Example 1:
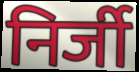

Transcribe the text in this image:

निर्जी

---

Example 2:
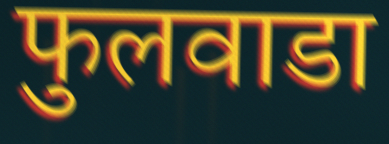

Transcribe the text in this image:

फुलवाडा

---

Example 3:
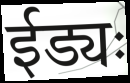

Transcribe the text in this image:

ईड्यः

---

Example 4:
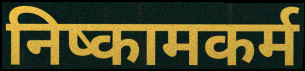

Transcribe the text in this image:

निष्कामकर्म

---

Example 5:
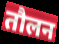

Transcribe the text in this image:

तौलन